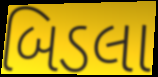
બિડલા